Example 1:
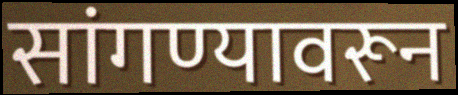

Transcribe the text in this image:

सांगण्यावरून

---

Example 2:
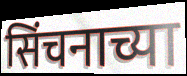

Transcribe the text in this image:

सिंचनाच्या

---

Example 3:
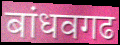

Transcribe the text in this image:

बांधवगढ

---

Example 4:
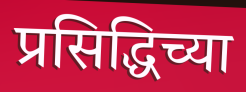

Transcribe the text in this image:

प्रसिद्धिच्या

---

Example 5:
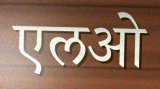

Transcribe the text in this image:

एलओ